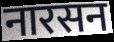
नारसन